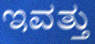
ಇವತ್ತು